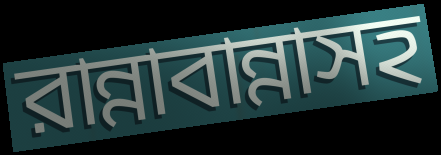
রান্নাবান্নাসহ